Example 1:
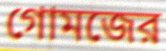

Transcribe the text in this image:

গোমজের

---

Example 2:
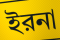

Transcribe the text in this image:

ইরনা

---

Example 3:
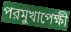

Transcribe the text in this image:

পরমুখাপেক্ষী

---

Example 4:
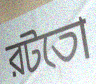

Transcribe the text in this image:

রটতো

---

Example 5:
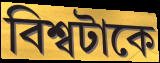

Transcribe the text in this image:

বিশ্বটাকে